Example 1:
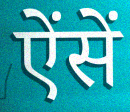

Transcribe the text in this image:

ऐंसें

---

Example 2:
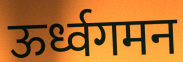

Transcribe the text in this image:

ऊर्ध्वगमन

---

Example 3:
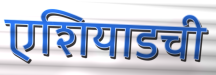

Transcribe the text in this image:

एशियाडची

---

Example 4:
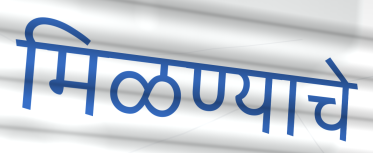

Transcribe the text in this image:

मिळण्याचे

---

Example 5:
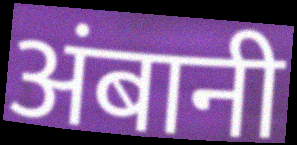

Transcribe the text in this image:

अंबानी